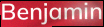
Benjamin